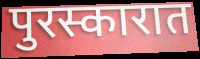
पुरस्कारात